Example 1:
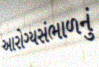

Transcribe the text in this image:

આરોગ્યસંભાળનું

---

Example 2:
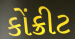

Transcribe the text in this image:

કોંક્રીટ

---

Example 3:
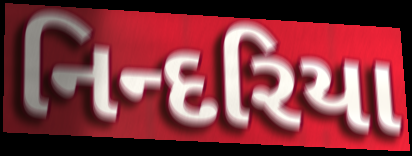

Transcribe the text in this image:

નિન્દરિયા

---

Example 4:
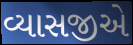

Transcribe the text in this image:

વ્યાસજીએ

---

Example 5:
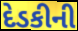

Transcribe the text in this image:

દેડકીની